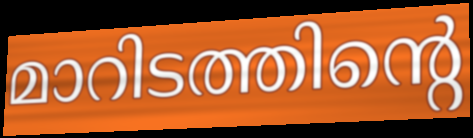
മാറിടത്തിന്റെ